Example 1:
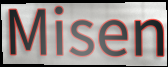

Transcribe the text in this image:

Misen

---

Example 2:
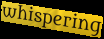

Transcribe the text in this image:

whispering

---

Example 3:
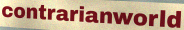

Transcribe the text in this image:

contrarianworld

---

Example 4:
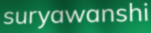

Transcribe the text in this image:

suryawanshi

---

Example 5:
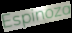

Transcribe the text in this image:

Espinoza